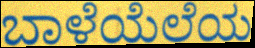
ಬಾಳೆಯೆಲೆಯ